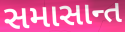
સમાસાન્ત